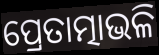
ପ୍ରେତାତ୍ମାଭଳି